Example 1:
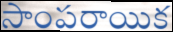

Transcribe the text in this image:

సాంపరాయిక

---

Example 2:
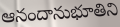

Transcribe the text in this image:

ఆనందానుభూతిని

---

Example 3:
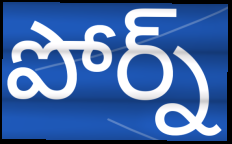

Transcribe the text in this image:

పోర్న్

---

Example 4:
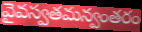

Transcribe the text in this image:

వైవస్వతమన్వంతరం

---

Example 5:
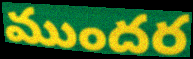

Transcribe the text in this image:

ముందర